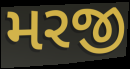
મરજી